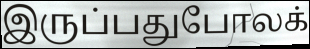
இருப்பதுபோலக்